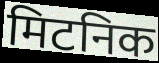
मिटनिक